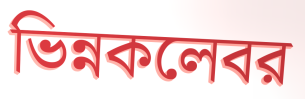
ভিন্নকলেবর